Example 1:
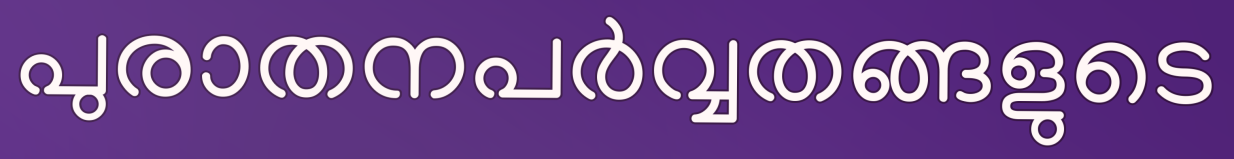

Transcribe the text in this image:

പുരാതനപർവ്വതങ്ങളുടെ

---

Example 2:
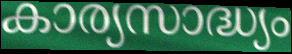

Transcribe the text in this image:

കാര്യസാദ്ധ്യം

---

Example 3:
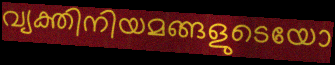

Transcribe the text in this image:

വ്യക്തിനിയമങ്ങളുടെയോ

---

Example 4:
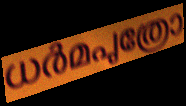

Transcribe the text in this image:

ധർമപുത്രോ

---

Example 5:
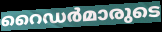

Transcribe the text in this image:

റൈഡർമാരുടെ